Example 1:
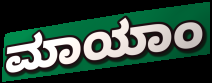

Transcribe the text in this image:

ಮಾಯಾಂ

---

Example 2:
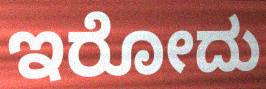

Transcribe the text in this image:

ಇರೋದು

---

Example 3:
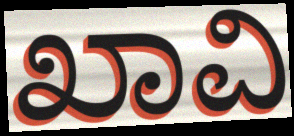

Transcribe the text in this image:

ಖಾವಿ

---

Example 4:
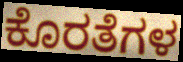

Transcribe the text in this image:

ಕೊರತೆಗಳ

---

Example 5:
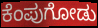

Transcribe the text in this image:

ಕೆಂಪುಗೋಡು